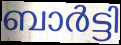
ബാർട്ടി